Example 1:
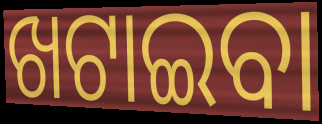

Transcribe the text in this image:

ଖଟାଇବା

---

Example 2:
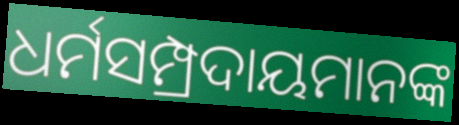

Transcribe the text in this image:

ଧର୍ମସମ୍ପ୍ରଦାୟମାନଙ୍କ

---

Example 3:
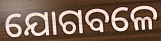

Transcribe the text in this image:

ଯୋଗବଳେ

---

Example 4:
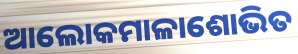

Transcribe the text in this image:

ଆଲୋକମାଳାଶୋଭିତ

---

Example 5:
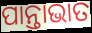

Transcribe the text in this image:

ପାନ୍ତାଭାତ